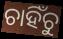
ଚାହିଁଚୁ